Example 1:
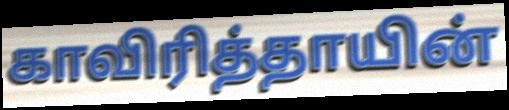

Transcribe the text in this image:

காவிரித்தாயின்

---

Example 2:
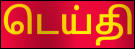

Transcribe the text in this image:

டெய்தி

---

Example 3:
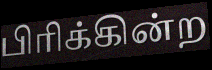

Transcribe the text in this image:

பிரிக்கின்ற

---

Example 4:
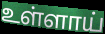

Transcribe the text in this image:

உள்ளாய்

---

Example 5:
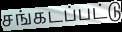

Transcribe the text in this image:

சங்கடப்பட்டு